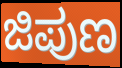
ಜಿಪುಣ